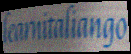
learnitaliango